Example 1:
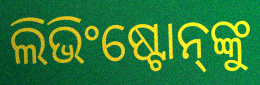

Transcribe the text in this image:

ଲିଭିଂଷ୍ଟୋନ୍‌ଙ୍କୁ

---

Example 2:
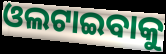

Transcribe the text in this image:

ଓଲଟାଇବାକୁ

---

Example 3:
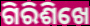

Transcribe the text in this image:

ଗିରିଶିଖେ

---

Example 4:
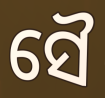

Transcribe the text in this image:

ସୈ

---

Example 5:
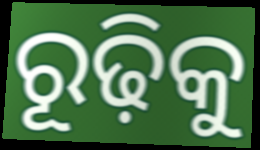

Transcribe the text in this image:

ରୂଢ଼ିକୁ